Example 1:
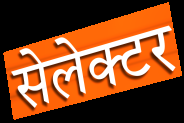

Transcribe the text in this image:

सेलेक्‍टर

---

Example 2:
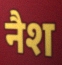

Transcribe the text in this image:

नैश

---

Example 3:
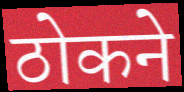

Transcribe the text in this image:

ठोकने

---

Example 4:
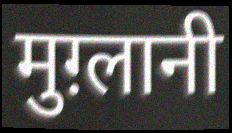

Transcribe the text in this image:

मुग़्लानी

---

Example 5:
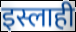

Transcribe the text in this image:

इस्लाही